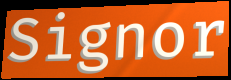
Signor